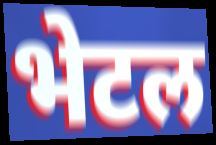
भेटल